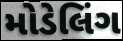
મોડેલિંગ